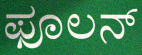
ಫೂಲನ್